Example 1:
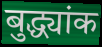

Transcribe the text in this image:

बुद्ध्यांक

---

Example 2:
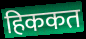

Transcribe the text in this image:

हिककत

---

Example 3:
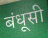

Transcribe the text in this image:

बंधूसी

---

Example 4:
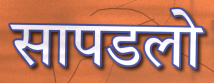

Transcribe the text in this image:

सापडलो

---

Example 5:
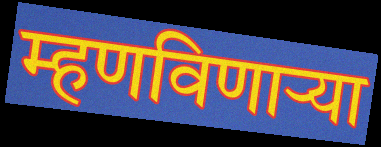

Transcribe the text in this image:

म्हणविणाऱ्या